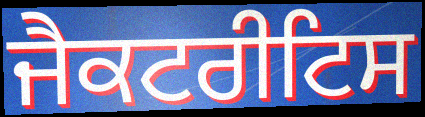
ਜੈਕਟਰੀਟਿਸ